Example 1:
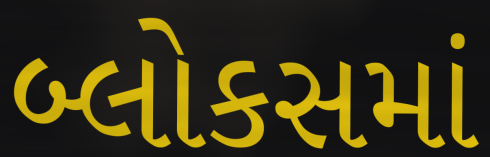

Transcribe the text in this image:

બ્લોકસમાં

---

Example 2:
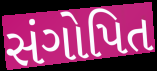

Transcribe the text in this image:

સંગોપિત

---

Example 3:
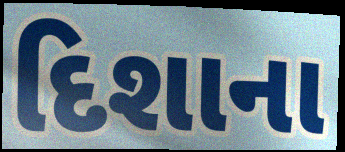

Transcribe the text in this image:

દિશાના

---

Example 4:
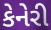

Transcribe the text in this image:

કેનેરી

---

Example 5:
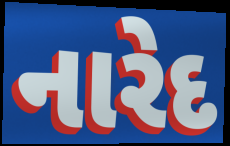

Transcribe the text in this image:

નારેદ